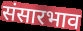
संसारभाव